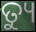
ତ୍ୟୁ